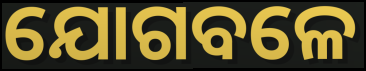
ଯୋଗବଳେ